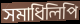
সমাধিলিপি